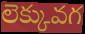
లెక్కువగ